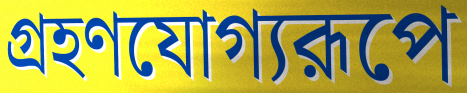
গ্রহণযোগ্যরূপে